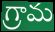
గ్రామ